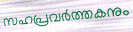
സഹപ്രവർത്തകനും